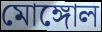
মোঙ্গোল